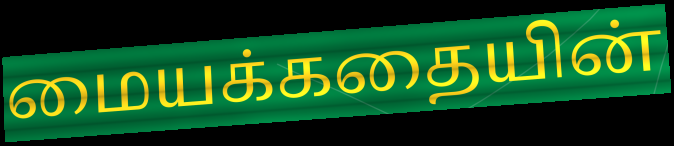
மையக்கதையின்